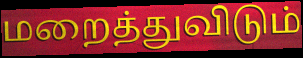
மறைத்துவிடும்